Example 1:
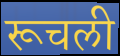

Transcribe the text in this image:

रूचली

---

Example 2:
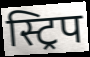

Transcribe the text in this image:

स्ट्रिप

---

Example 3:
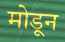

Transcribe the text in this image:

मोडून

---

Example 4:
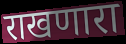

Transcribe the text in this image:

राखणारा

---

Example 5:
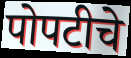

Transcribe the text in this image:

पोपटीचे